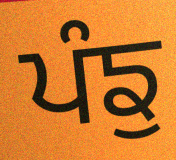
ਪੰਙੁ